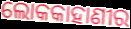
ଲୋକକାହାଣୀର